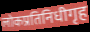
लोकप्रतिनिधीगृह